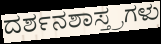
ದರ್ಶನಶಾಸ್ತ್ರಗಳು